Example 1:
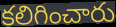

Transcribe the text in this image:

కలిగించారు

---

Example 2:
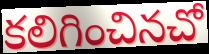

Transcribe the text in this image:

కలిగించినచో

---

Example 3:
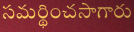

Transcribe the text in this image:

సమర్థించసాగారు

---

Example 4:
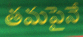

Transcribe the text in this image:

తమపైనే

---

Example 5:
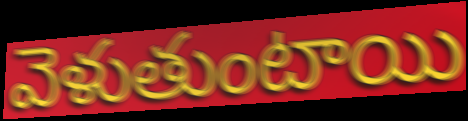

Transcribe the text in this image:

వెళుతుంటాయి